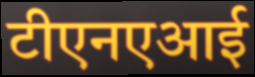
टीएनएआई